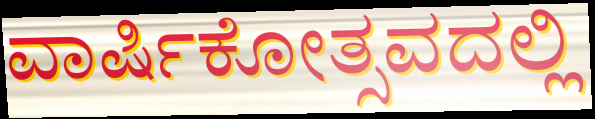
ವಾರ್ಷಿಕೋತ್ಸವದಲ್ಲಿ